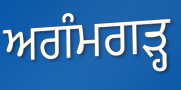
ਅਗੰਮਗੜ੍ਹ